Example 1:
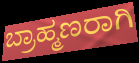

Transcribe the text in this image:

ಬ್ರಾಹ್ಮಣರಾಗಿ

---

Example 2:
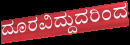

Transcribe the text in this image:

ದೂರವಿದ್ದುದರಿಂದ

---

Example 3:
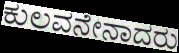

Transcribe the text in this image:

ಕುಲವನೇನಾದರು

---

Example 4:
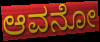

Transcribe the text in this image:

ಆವನೋ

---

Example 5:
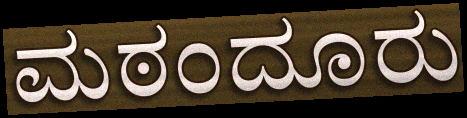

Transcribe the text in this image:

ಮಠಂದೂರು